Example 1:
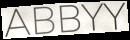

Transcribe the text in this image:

ABBYY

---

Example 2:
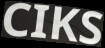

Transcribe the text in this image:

CIKS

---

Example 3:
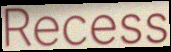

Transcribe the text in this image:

Recess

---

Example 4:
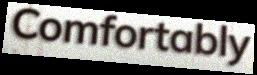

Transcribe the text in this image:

Comfortably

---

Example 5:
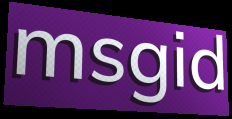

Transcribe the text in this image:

msgid